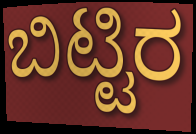
ಬಿಟ್ಟಿರ